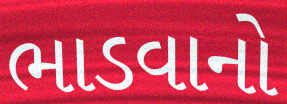
ભાડવાનો